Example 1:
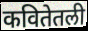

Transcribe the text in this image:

कवितेतली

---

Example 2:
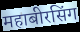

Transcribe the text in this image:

महाबीरसिंग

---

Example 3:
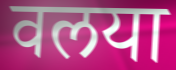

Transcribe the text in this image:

वलया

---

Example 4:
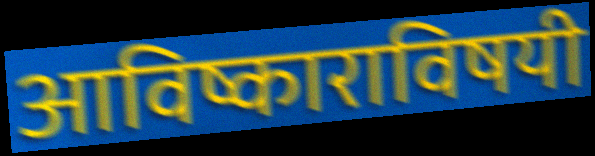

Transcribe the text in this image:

आविष्काराविषयी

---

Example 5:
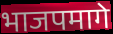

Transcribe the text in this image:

भाजपमागे